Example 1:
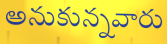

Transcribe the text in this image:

అనుకున్నవారు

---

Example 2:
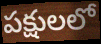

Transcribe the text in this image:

పక్షులలో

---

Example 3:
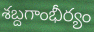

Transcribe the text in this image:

శబ్దగాంభీర్యం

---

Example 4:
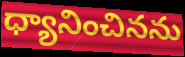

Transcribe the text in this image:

ధ్యానించినను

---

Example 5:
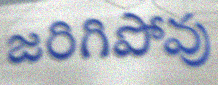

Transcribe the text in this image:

జరిగిపోవు